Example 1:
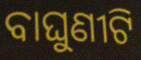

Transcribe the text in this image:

ବାଘୁଣୀଟି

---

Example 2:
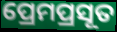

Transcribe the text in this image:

ପ୍ରେମପ୍ରସୂତ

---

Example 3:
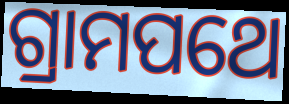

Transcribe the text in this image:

ଗ୍ରାମପଥେ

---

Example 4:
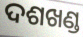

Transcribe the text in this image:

ଦଶଖଣ୍ଡ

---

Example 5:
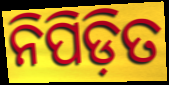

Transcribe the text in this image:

ନିପିଡ଼ିତ